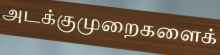
அடக்குமுறைகளைக்